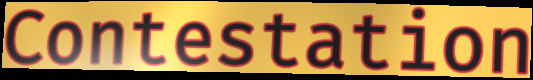
Contestation